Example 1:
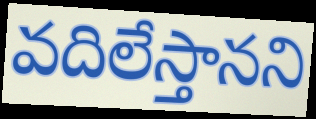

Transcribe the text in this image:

వదిలేస్తానని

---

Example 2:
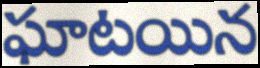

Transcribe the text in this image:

ఘాటయిన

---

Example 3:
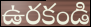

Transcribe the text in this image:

ఉరకండి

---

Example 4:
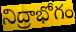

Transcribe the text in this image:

నిద్రాభోగం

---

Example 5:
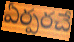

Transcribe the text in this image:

ఏర్పరచే